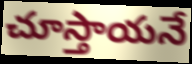
చూస్తాయనే